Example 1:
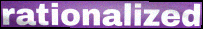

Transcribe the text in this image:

rationalized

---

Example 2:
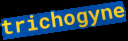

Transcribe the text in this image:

trichogyne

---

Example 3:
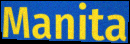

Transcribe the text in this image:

Manita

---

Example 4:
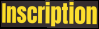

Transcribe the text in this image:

Inscription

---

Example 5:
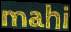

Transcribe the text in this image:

mahi